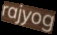
rajyog